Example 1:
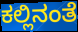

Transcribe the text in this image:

ಕಲ್ಲಿನಂತೆ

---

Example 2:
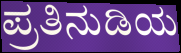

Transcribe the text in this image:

ಪ್ರತಿನುಡಿಯ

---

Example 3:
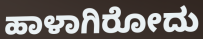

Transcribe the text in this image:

ಹಾಳಾಗಿರೋದು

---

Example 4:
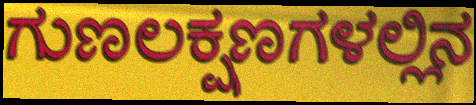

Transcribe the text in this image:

ಗುಣಲಕ್ಷಣಗಳಲ್ಲಿನ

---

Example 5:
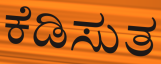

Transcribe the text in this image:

ಕೆಡಿಸುತ